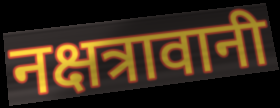
नक्षत्रावानी